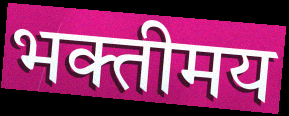
भक्तीमय